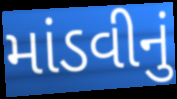
માંડવીનું